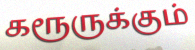
கரூருக்கும்